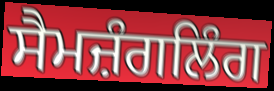
ਸੈਮਜ਼ੰਗਲਿੰਗ